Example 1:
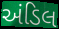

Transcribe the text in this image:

અંડિલ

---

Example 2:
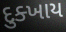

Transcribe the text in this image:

દુક્ખાય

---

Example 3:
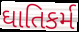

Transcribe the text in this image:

ઘાતિકર્મ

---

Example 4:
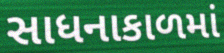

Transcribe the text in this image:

સાધનાકાળમાં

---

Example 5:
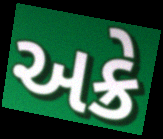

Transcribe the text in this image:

અક્રે